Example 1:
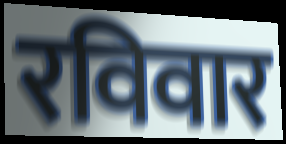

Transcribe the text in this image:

रविवार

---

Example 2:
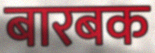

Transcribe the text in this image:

बारबक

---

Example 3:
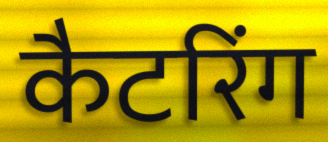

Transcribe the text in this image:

कैटरिंग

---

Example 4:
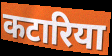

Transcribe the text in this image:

कटारिया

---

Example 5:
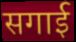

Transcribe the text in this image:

सगाई